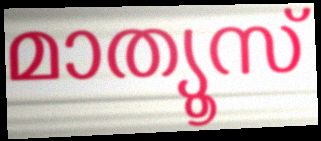
മാത്യൂസ്